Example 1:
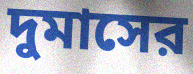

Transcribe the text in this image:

দুমাসের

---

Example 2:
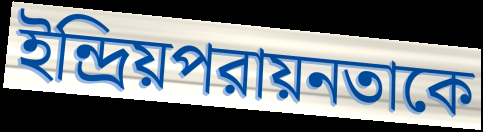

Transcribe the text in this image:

ইন্দ্রিয়পরায়নতাকে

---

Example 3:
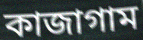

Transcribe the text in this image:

কাজাগাম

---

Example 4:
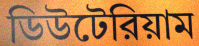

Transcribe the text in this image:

ডিউটেরিয়াম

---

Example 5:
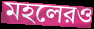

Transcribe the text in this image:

মহলেরও